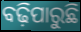
ବଢ଼ିପାରୁଛି